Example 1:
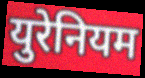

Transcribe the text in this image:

युरेनियम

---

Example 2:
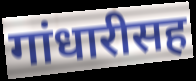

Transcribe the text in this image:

गांधारीसह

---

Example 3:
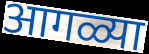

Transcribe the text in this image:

आगळ्या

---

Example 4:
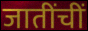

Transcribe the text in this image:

जातींचीं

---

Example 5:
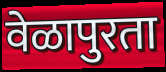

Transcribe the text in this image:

वेळापुरता